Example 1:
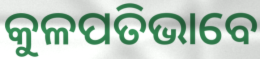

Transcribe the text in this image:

କୁଳପତିଭାବେ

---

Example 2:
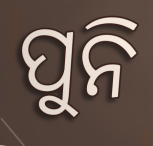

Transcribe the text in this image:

ପୁନି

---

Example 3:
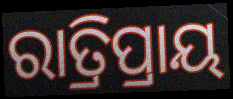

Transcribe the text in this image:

ରାତ୍ରିପ୍ରାୟ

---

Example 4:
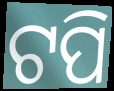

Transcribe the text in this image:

ଟପି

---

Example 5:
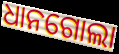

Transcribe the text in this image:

ଧାନଗୋଲା